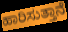
ಹಾರಿಸುತ್ತಾನೆ